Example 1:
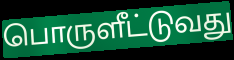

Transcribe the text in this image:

பொருளீட்டுவது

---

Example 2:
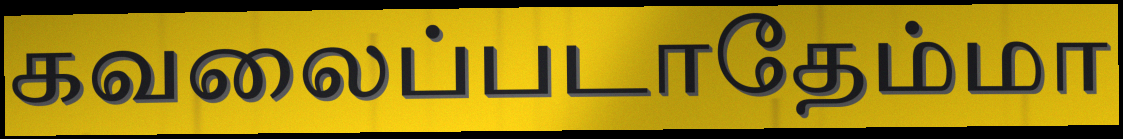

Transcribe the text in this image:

கவலைப்படாதேம்மா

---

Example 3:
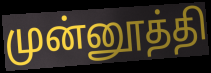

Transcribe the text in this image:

முன்னூத்தி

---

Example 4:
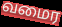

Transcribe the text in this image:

வமைர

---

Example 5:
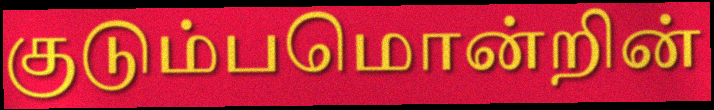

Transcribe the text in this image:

குடும்பமொன்றின்